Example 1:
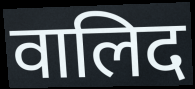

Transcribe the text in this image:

वालिद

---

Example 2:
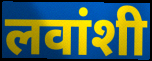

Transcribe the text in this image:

लवांशी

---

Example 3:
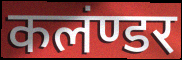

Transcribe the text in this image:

कलंण्डर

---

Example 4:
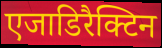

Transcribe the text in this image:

एजाडिरैक्टिन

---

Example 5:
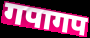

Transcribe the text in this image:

गपागप